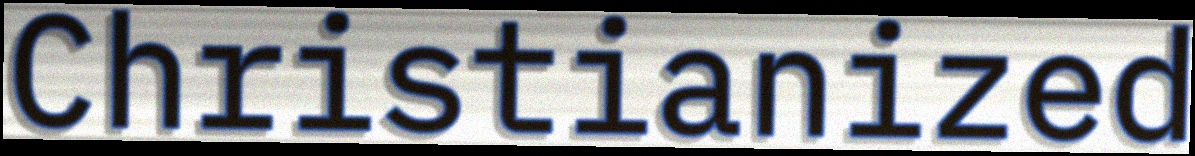
Christianized